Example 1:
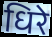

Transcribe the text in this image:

धिरे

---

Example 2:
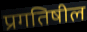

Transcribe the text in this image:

प्रगतिषील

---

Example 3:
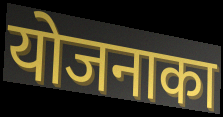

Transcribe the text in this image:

योजनाका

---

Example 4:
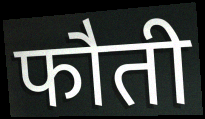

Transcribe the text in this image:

फौती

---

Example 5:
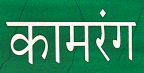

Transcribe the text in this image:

कामरंग